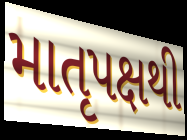
માતૃપક્ષથી